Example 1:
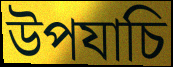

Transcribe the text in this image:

উপযাচি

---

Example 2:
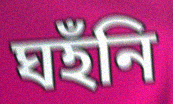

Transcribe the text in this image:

ঘহঁনি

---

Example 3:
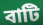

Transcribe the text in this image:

বাটি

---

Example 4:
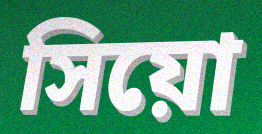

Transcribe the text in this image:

সিয়ো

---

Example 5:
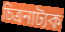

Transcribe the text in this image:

চিত্ৰনাট্যক